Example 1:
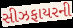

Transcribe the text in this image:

સીઝફાયરની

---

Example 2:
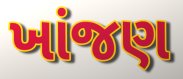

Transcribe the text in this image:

ખાંજણ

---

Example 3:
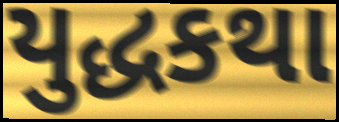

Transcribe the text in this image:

યુદ્ધકથા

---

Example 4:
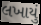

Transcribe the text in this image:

લખાયું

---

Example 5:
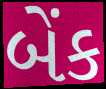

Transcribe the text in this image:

બેંક